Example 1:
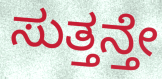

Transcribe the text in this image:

ಸುತ್ತನ್ತೇ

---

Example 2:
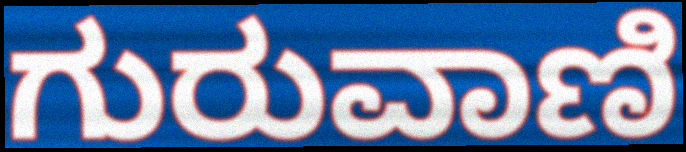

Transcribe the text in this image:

ಗುರುವಾಣಿ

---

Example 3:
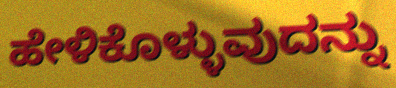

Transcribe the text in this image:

ಹೇಳಿಕೊಳ್ಳುವುದನ್ನು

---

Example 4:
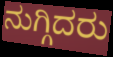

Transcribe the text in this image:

ನುಗ್ಗಿದರು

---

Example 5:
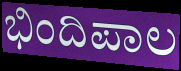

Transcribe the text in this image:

ಭಿಂದಿಪಾಲ